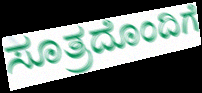
ಸೂತ್ರದೊಂದಿಗೆ